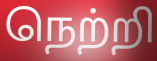
நெற்றி